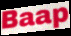
Baap